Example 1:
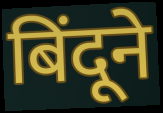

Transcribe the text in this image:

बिंदूने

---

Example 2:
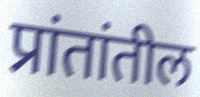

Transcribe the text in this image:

प्रांतांतील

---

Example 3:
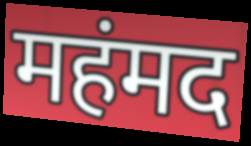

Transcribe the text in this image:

महंमद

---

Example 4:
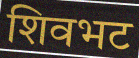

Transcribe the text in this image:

शिवभट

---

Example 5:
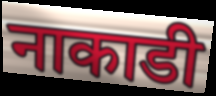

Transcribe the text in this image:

नाकाडी